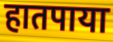
हातपाया